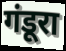
गंडूरा